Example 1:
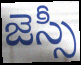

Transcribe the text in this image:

జెస్సీ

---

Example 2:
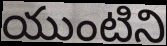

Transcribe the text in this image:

యుంటిని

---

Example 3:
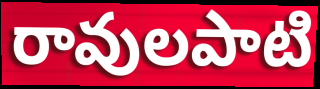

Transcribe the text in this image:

రావులపాటి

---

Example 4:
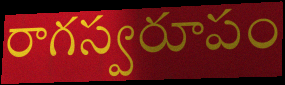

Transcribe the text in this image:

రాగస్వరూపం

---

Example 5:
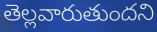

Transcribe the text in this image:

తెల్లవారుతుందని